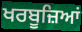
ਖਰਬੂਜ਼ਿਆਂ